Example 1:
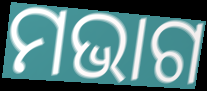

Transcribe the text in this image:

ମଭାଗ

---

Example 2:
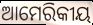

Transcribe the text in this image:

ଆମେରିକୀୟ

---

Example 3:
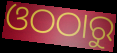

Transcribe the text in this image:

ଓଠଠାରୁ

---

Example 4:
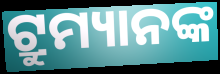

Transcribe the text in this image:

ଟ୍ରୁମ୍ୟାନଙ୍କ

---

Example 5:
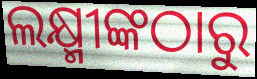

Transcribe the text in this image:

ଲକ୍ଷ୍ମୀଙ୍କଠାରୁ